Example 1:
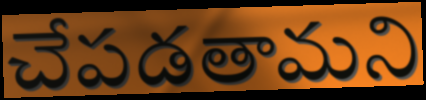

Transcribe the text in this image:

చేపడతామని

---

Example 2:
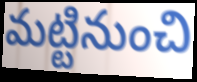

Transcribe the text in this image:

మట్టినుంచి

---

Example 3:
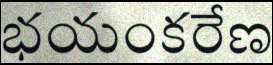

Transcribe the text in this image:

భయంకరేణ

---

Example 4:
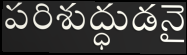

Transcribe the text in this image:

పరిశుద్ధుడనై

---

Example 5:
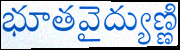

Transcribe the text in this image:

భూతవైద్యుణ్ణి